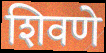
शिवणे